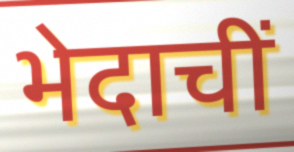
भेदाचीं